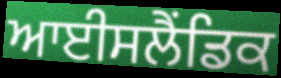
ਆਈਸਲੈਂਡਿਕ